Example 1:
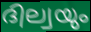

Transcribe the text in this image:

ദില്വയും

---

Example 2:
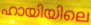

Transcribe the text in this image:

ഹായിയിലെ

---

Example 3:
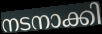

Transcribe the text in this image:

നടനാക്കി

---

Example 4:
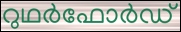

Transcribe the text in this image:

റുഥർഫോർഡ്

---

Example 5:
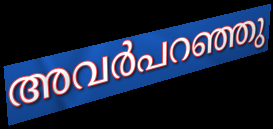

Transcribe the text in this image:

അവർപറഞ്ഞു